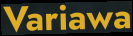
Variawa